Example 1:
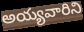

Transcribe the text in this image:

అయ్యవారిని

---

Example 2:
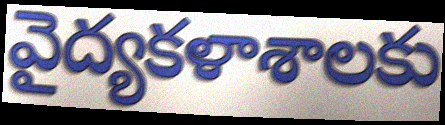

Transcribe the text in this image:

వైద్యకళాశాలకు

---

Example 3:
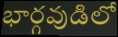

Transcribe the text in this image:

భార్గవుడిలో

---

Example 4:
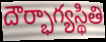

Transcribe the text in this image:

దౌర్భాగ్యస్థితి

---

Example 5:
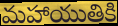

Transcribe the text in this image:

మహాయుతికి